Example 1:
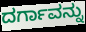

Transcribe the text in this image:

ದರ್ಗಾವನ್ನು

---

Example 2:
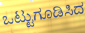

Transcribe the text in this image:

ಒಟ್ಟುಗೂಡಿಸಿದ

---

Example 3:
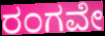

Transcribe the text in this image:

ರಂಗವೇ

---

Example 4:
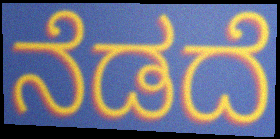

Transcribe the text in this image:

ನೆಡದೆ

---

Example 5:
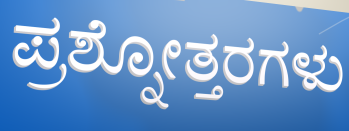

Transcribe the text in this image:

ಪ್ರಶ್ನೋತ್ತರಗಳು